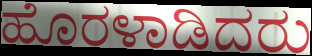
ಹೊರಳಾಡಿದರು